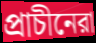
প্রাচীনেরা